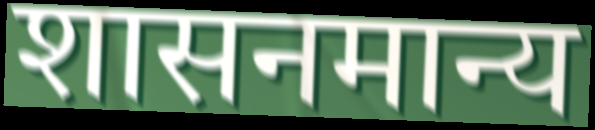
शासनमान्य